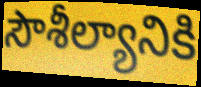
సౌశీల్యానికి